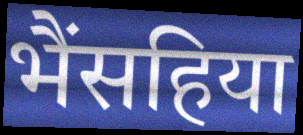
भैंसहिया